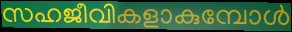
സഹജീവികളാകുമ്പോൾ